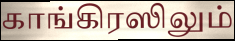
காங்கிரஸிலும்